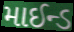
માઈન્ડ